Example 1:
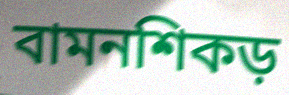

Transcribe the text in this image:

বামনশিকড়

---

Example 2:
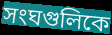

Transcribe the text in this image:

সংঘগুলিকে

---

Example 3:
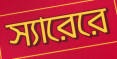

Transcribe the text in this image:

স্যারেরে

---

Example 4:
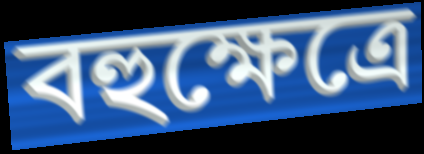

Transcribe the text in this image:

বহুক্ষেত্রে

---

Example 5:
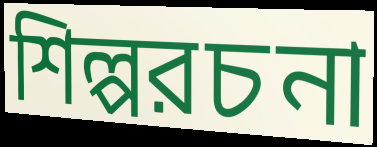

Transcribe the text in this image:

শিল্পরচনা